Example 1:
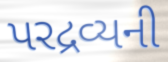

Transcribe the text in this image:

પરદ્રવ્યની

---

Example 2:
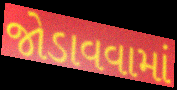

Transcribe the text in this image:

જોડાવવામાં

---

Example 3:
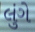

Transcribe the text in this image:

લુંગે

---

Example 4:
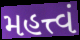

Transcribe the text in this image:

મહત્ત્વં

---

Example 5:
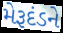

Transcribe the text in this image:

મેરૂદંડને